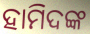
ହାମିଦଙ୍କ